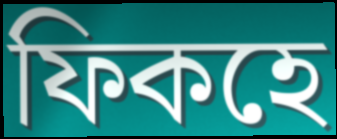
ফিকহে